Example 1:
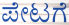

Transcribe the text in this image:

ಪೇಟಗೆ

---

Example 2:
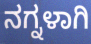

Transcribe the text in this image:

ನಗ್ನಳಾಗಿ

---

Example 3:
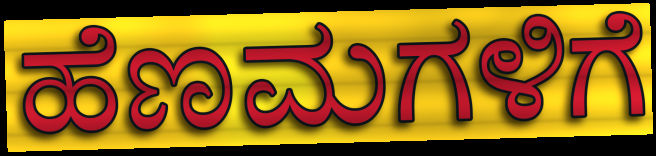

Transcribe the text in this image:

ಹೆಣಮಗಳಿಗೆ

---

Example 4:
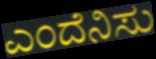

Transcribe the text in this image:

ಎಂದೆನಿಸು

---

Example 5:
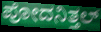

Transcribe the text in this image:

ಪೋದನಿತ್ತಲ್